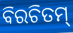
ବିରଚିତମ୍